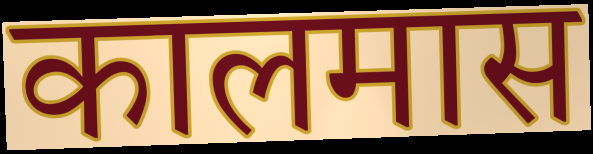
कालमास